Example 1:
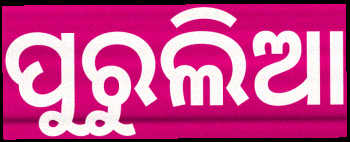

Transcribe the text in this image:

ପୁରୁଲିଆ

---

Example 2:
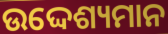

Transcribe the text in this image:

ଉଦ୍ଦେଶ୍ୟମାନ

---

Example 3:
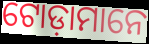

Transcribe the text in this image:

ଟୋଡ଼ାମାନେ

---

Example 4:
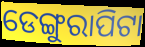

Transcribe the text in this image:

ଡେଙ୍ଗୁରାପିଟା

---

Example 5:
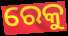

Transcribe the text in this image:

ରେକୁ